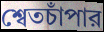
শ্বেতচাঁপার